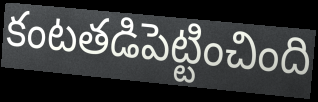
కంటతడిపెట్టించింది